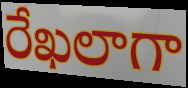
రేఖలాగా